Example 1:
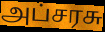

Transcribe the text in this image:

அப்சரசு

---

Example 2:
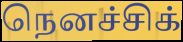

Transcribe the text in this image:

நெனச்சிக்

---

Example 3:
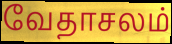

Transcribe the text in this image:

வேதாசலம்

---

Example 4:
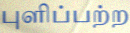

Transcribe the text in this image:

புளிப்பற்ற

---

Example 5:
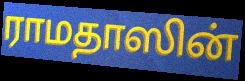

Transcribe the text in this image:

ராமதாஸின்